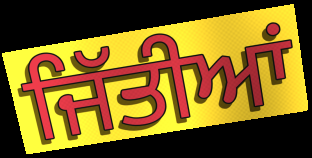
ਜਿੱਤੀਆਂ